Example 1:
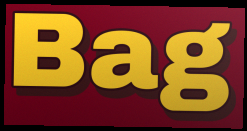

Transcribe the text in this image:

Bag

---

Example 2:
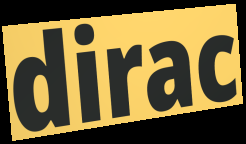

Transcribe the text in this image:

dirac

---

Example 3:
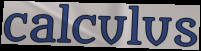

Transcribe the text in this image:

calculus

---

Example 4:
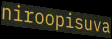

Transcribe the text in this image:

niroopisuva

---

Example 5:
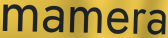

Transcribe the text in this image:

mamera